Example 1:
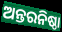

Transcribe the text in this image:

ଅନ୍ତରନିଷ୍ଠା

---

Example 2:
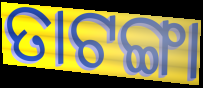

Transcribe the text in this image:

ତାଟଙ୍ଗା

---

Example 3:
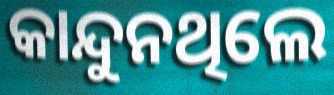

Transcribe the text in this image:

କାନ୍ଦୁନଥିଲେ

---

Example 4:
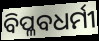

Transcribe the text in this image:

ବିପ୍ଳବଧର୍ମୀ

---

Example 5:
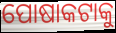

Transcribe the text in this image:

ପୋଷାକଟାକୁ